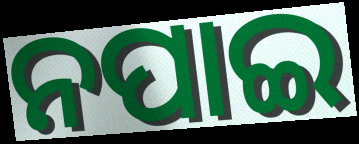
ନପାଇ